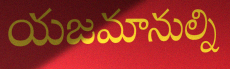
యజమానుల్ని